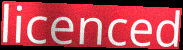
licenced